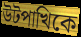
উটপাখিকে